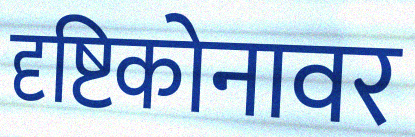
दृष्टिकोनावर